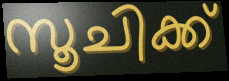
സൂചിക്ക്